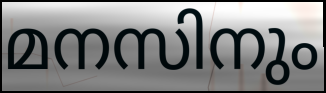
മനസിനും